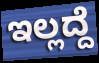
ಇಲ್ಲದ್ದೆ